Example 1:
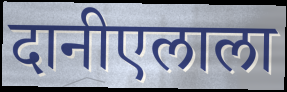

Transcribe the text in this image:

दानीएलाला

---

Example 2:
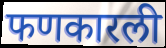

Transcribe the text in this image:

फणकारली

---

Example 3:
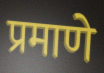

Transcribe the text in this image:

प्रमाणे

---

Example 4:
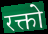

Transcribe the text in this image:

रक्तो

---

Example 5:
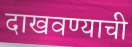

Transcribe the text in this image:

दाखवण्याची